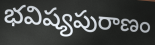
భవిష్యపురాణం